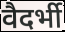
वैदर्भी